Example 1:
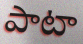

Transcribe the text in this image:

పాటా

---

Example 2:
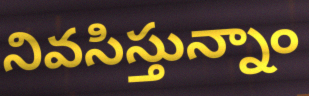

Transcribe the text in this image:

నివసిస్తున్నాం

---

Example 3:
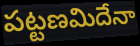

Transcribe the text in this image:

పట్టణమిదేనా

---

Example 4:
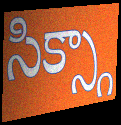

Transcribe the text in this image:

సిక్స్గా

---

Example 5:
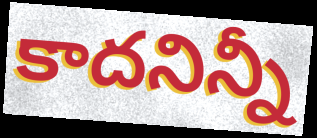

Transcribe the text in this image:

కాదనిన్నీ